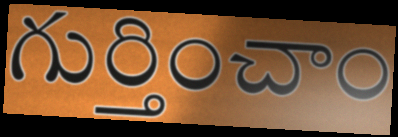
గుర్తించాం